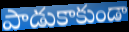
పాడుకాకుండా